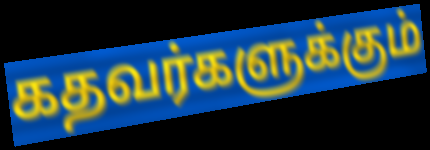
கதவர்களுக்கும்